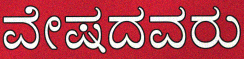
ವೇಷದವರು